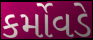
કર્મોવડે